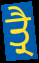
ਤ੍ਰ੍ਰੈ